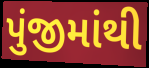
પુંજીમાંથી